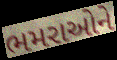
ભમરાઓને